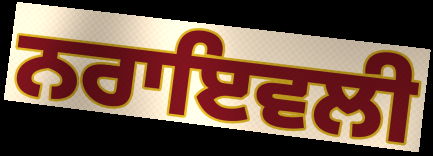
ਨਰਾਇਵਲੀ